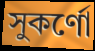
সুকৰ্ণো